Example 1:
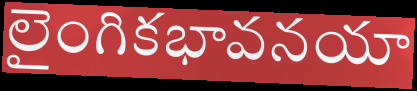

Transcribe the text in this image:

లైంగికభావనయా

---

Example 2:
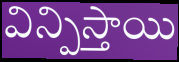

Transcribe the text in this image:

విన్పిస్తాయి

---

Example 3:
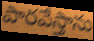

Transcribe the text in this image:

పారవేస్తాను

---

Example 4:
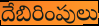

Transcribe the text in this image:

దేబిరింపులు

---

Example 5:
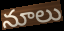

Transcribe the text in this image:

నూలు